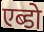
एब्डो